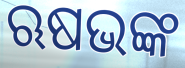
ଋଷଭଙ୍କ